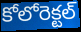
కోలోరెక్టల్